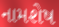
નામશેષ